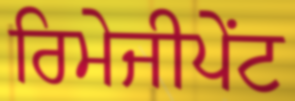
ਰਿਮੇਜੀਪੇਂਟ